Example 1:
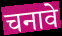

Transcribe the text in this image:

चनावे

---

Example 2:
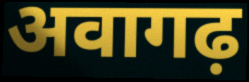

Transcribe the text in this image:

अवागढ़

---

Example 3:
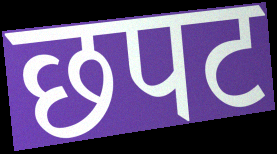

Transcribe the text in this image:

छपट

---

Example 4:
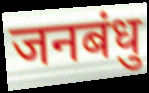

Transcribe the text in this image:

जनबंधु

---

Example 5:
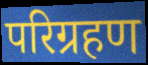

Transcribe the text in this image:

परिग्रहण